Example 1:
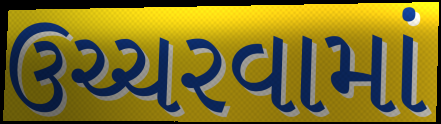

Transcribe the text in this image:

ઉચ્ચરવામાં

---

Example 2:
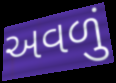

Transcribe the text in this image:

અવળું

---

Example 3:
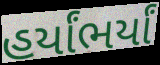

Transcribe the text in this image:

હર્યાંભર્યાં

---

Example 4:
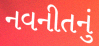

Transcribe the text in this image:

નવનીતનું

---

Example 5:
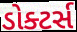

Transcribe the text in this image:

ડોક્ટર્સ